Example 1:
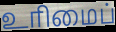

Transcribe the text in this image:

உரிமைப்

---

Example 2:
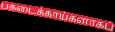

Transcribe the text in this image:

பகடைக்காய்களாகப்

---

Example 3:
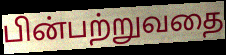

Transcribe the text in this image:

பின்பற்றுவதை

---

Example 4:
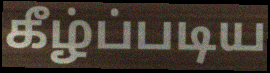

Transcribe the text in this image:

கீழ்ப்படிய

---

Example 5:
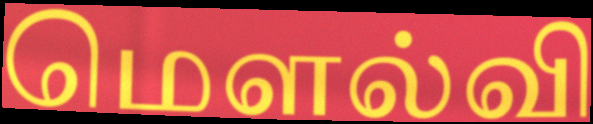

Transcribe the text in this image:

மௌல்வி